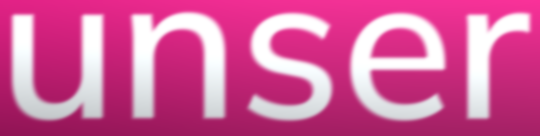
unser